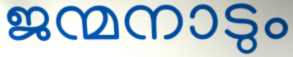
ജന്മനാടും